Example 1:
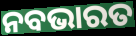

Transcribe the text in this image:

ନବଭାରତ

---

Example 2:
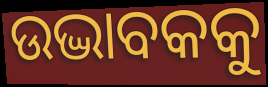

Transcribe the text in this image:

ଉଦ୍ଭାବକକୁ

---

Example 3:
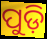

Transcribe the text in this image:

ପୁଡ଼ି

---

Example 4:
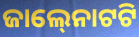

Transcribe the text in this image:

ଜାଲ୍‍ନୋଟଟି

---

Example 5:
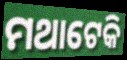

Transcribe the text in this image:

ମଥାଟେକି